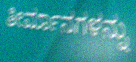
ತೀರ್ಮಾನಗಳನ್ನು